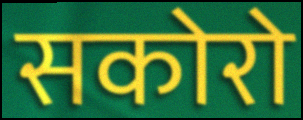
सकोरो